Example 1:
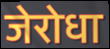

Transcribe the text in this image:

जेरोधा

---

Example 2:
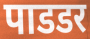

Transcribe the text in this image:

पाडडर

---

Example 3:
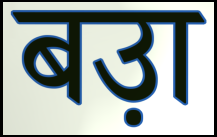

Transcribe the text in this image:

बउ़ा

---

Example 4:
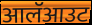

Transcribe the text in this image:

आलॅआउट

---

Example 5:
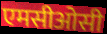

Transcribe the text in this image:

एमसीओसी